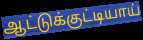
ஆட்டுக்குட்டியாய்